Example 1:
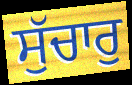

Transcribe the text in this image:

ਸੁੱਚਾਰੁ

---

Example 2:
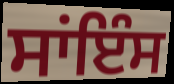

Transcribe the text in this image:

ਸਾਂਇੰਸ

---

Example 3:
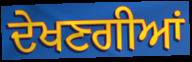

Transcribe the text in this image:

ਦੇਖਣਗੀਆਂ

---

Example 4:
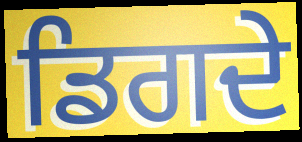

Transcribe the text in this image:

ਡਿਗਦੇ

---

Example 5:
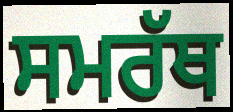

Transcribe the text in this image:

ਸਮਰੱਥ